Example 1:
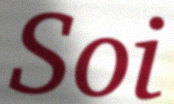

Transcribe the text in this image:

Soi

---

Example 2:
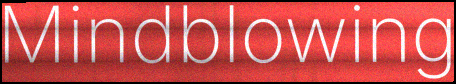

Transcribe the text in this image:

Mindblowing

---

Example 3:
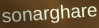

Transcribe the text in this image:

sonarghare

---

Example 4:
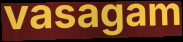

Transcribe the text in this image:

vasagam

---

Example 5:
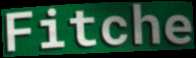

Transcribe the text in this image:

Fitche